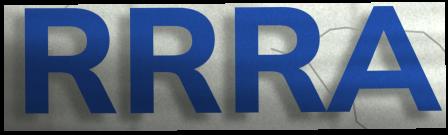
RRRA